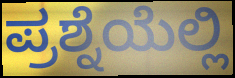
ಪ್ರಶ್ನೆಯೆಲ್ಲಿ